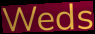
Weds